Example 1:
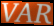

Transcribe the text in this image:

VAR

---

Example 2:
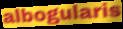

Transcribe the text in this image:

albogularis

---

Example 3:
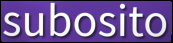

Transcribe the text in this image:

subosito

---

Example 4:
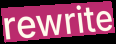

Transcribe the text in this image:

rewrite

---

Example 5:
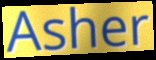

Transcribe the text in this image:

Asher